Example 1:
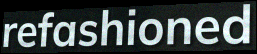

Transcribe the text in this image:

refashioned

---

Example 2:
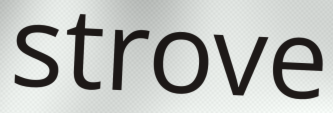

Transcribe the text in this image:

strove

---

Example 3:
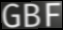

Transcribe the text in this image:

GBF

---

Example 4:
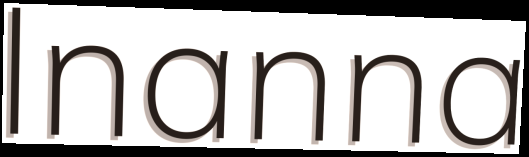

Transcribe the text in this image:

Inanna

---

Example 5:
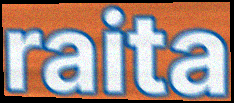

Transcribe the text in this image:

raita